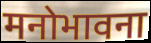
मनोभावना